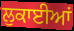
ਲੁਕਾਈਆਂ